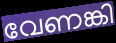
വേണങ്കി